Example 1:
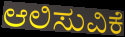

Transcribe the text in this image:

ಆಲಿಸುವಿಕೆ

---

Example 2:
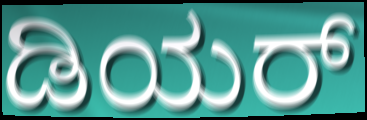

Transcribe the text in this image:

ಡಿಯರ್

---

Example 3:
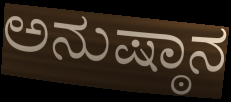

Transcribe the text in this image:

ಅನುಷ್ಠಾನ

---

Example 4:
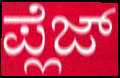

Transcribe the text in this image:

ಪ್ಲೆಜ್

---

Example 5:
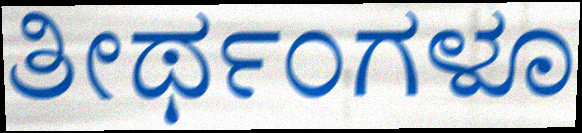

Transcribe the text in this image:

ತೀರ್ಥಂಗಳೂ